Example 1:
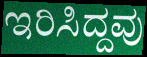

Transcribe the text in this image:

ಇರಿಸಿದ್ದವು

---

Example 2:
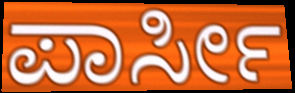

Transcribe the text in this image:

ಪಾರ್ಸೀ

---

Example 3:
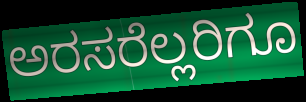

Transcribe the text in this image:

ಅರಸರೆಲ್ಲರಿಗೂ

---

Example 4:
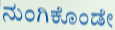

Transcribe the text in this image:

ನುಂಗಿಕೊಂಡೇ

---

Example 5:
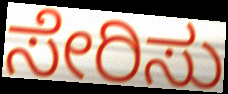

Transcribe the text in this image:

ಸೇರಿಸು